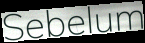
Sebelum